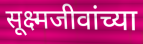
सूक्ष्मजीवांच्या